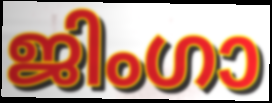
ജിംഗാ